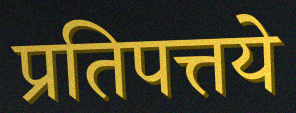
प्रतिपत्तये